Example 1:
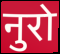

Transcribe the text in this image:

नुरो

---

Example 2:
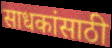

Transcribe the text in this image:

साधकांसाठी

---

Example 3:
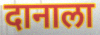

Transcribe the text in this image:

दानाला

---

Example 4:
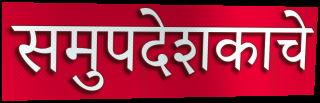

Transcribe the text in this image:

समुपदेशकाचे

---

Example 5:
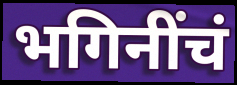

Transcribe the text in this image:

भगिनींचं